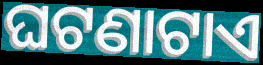
ଘଟଣାଟାଏ